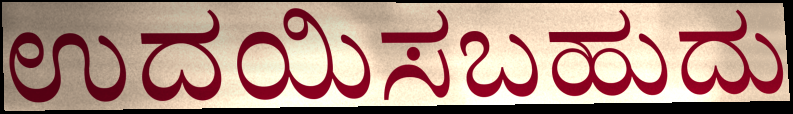
ಉದಯಿಸಬಹುದು